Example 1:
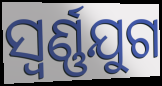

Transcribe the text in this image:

ସ୍ଵର୍ଣ୍ଣଯୁଗ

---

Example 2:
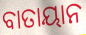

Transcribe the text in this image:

ବାତାୟାନ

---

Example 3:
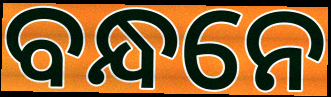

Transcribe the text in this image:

ବନ୍ଧନେ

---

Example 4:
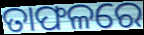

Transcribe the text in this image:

ତାଫଳରେ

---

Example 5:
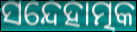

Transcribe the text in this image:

ସନ୍ଦେହାତ୍ମକ